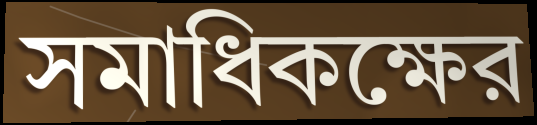
সমাধিকক্ষের